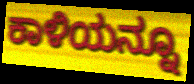
ಕಾಳಿಯನ್ನೂ